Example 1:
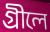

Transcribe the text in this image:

গ্রীলে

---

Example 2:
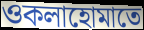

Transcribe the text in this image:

ওকলাহোমাতে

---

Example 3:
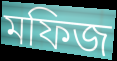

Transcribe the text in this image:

মফিজ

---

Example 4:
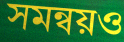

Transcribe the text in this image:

সমন্বয়ও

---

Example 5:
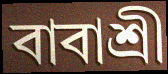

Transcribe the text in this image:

বাবাশ্রী